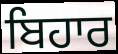
ਬਿਹਾਰ